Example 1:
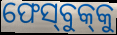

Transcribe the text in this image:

ଫେସ୍‌ବୁକ୍‌କୁ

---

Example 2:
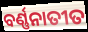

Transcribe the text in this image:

ବର୍ଣ୍ଣନାତୀତ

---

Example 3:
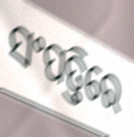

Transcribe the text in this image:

ସଂପତ୍ତିରେ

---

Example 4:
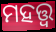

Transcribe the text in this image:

ମହତ୍ତ୍ବ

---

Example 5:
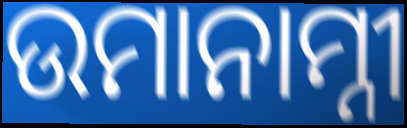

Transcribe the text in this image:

ଉମାନାମ୍ନୀ